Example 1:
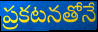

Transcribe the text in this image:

ప్రకటనతోనే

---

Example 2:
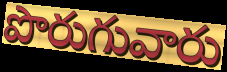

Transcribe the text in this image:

పొరుగువారు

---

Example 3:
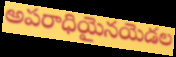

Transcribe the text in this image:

అపరాధియైనయెడల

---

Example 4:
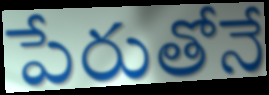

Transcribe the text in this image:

పేరుతోనే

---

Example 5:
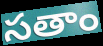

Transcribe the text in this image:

సతాం